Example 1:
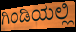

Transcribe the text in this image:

ಗಿಂಡಿಯಲ್ಲಿ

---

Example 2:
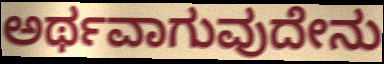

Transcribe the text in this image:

ಅರ್ಥವಾಗುವುದೇನು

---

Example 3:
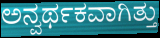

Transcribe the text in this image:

ಅನ್ವರ್ಥಕವಾಗಿತ್ತು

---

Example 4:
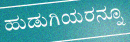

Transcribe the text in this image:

ಹುಡುಗಿಯರನ್ನೂ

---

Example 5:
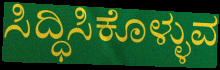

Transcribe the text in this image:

ಸಿದ್ಧಿಸಿಕೊಳ್ಳುವ